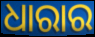
ଧାରାର